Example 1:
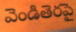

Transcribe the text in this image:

వెండితెరపై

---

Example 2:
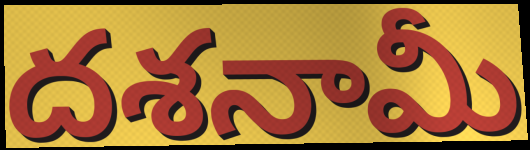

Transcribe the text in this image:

దశనామీ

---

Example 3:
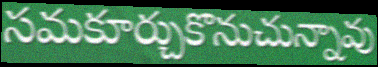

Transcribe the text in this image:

సమకూర్చుకొనుచున్నావు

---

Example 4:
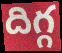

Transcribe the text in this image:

దిగ్గ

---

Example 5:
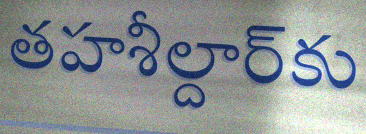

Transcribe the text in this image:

తహశీల్దార్‌కు